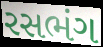
રસભંગ